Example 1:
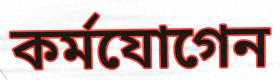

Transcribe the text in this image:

কর্মযোগেন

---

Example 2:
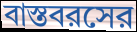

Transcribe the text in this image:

বাস্তবরসের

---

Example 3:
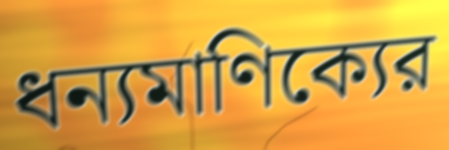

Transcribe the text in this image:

ধন্যমাণিক্যের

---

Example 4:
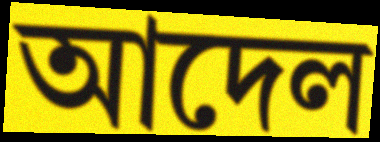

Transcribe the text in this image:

আদেল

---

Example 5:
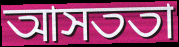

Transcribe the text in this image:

আসততা